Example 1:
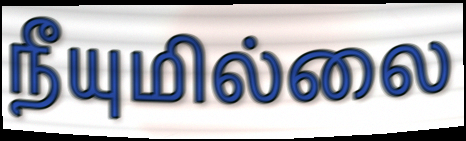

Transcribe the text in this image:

நீயுமில்லை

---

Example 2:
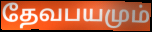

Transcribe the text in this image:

தேவபயமும்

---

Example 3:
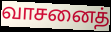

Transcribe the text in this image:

வாசனைத்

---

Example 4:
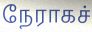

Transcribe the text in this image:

நேராகச்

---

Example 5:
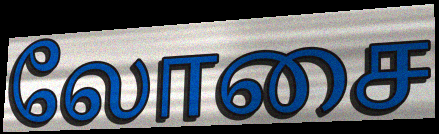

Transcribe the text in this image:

லோசை